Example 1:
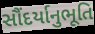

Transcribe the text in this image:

સૌંદર્યાનુભૂતિ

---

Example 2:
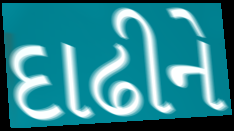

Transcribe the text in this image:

દાઢીને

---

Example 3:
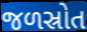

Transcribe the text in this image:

જળસ્રોત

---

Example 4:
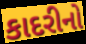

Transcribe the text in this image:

કાદરીનો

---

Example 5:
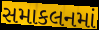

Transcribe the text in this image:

સમાકલનમાં